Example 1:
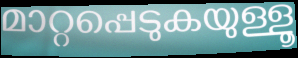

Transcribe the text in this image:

മാറ്റപ്പെടുകയുള്ളൂ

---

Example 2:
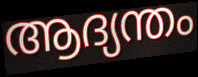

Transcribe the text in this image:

ആദ്യന്തം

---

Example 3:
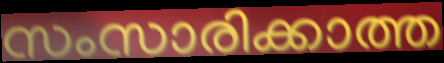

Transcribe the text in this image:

സംസാരിക്കാത്ത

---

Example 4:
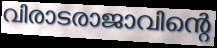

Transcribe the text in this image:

വിരാടരാജാവിന്റെ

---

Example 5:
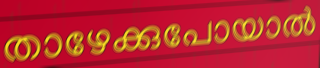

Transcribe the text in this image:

താഴേക്കുപോയാൽ